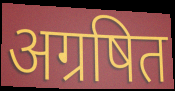
अग्रषित